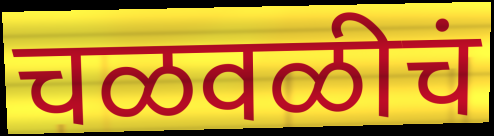
चळवळीचं